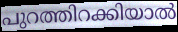
പുറത്തിറക്കിയാൽ